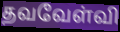
தவவேள்வி